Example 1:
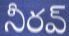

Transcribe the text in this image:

నీరవ్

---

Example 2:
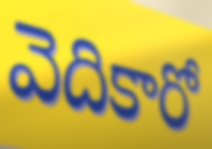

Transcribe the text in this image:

వెదికారో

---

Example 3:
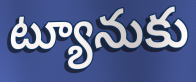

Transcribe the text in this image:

ట్యూనుకు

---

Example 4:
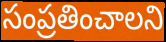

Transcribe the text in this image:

సంప్రతించాలని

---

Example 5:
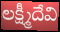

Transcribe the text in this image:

లక్ష్మీదేవి